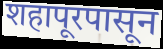
शहापूरपासून